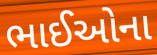
ભાઈઓના